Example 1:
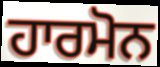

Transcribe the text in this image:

ਹਾਰਮੋਨ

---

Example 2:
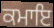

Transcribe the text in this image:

ਕਮਾਇ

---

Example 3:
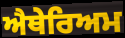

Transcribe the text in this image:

ਐਥੇਰਿਅਮ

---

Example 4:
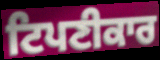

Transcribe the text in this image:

ਟਿਪਣੀਕਾਰ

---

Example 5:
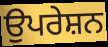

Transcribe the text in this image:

ਉਪਰੇਸ਼ਨ